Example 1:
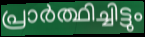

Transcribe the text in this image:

പ്രാർത്ഥിച്ചിട്ടും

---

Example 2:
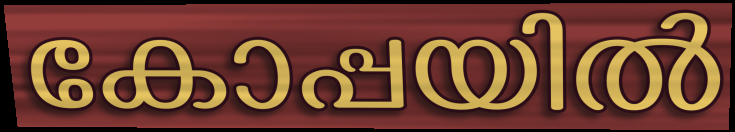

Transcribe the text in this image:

കോപ്പയിൽ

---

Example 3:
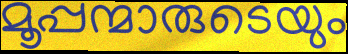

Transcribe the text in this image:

മൂപ്പന്മാരുടെയും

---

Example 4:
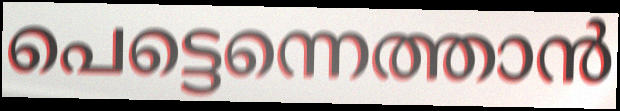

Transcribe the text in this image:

പെട്ടെന്നെത്താൻ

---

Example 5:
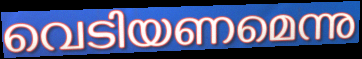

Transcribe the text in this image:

വെടിയണമെന്നു